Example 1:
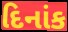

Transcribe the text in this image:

દિનાંક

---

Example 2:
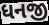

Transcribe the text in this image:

ધનજી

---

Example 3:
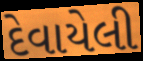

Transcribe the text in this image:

દેવાયેલી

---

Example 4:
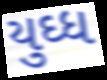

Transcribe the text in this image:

યુઘ્ધ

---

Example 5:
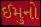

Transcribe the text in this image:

ઈમુનો